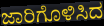
ಜಾರಿಗೊಳಿಸಿದ